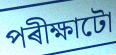
পৰীক্ষাটো